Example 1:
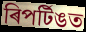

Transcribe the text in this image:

ৰিপৰ্টিঙত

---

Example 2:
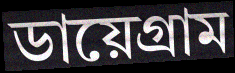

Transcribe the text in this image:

ডায়েগ্ৰাম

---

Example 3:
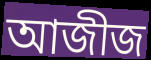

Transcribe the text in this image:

আজীজ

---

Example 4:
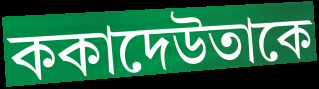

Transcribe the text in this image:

ককাদেউতাকে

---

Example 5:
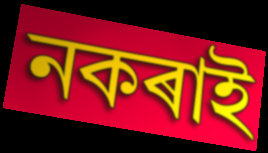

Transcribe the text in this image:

নকৰাই